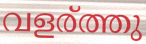
വളര്ത്തു